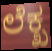
ಲೆಕ್ಖ